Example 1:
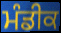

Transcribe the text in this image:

ਮੰਡੀਕ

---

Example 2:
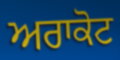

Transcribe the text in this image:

ਅਰਾਕੋਟ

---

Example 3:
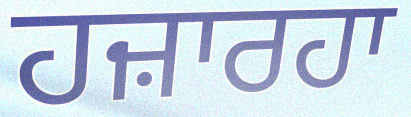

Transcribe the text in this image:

ਹਜ਼ਾਰਹਾ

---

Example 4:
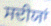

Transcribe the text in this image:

ਸਦੀਯਾਂ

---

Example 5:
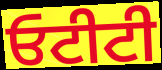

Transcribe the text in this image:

ਓਟੀਟੀ